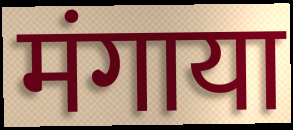
मंगाया